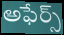
అఫేర్స్